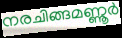
നരചിങ്ങമണ്ണൂർ